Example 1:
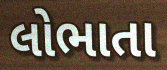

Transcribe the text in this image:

લોભાતા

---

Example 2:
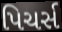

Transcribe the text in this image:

પિચર્સ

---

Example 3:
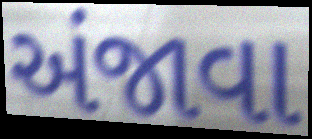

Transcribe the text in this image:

અંજાવા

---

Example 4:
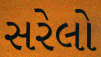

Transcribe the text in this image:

સરેલો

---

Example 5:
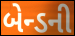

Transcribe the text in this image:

બેન્ડની